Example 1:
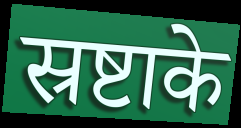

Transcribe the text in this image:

स्रष्टाके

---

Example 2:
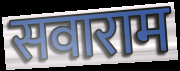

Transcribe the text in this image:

सवाराम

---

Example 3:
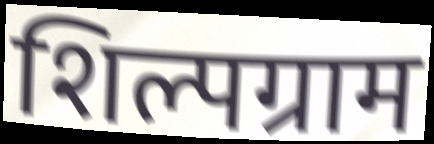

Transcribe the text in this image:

शिल्पग्राम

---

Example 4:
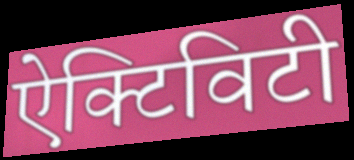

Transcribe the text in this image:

ऐक्टिविटी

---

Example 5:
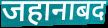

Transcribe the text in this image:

जहानाबद